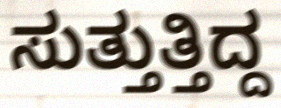
ಸುತ್ತುತ್ತಿದ್ದ